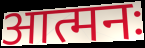
आत्मनः